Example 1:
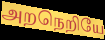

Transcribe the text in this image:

அறநெறியே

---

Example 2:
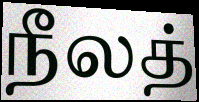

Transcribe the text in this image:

நீலத்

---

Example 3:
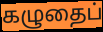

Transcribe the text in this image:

கழுதைப்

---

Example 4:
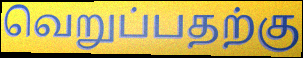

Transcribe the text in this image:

வெறுப்பதற்கு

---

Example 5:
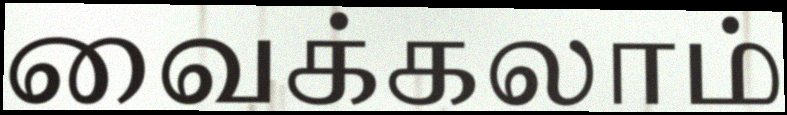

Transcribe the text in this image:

வைக்கலாம்